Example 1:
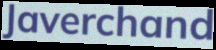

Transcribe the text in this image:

Javerchand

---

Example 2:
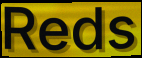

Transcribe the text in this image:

Reds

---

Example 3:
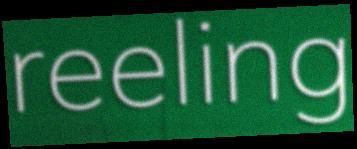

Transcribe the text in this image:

reeling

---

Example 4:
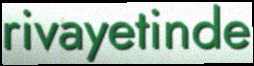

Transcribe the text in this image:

rivayetinde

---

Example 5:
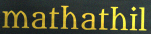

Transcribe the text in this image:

mathathil